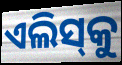
ଏଲିସ୍‌କୁ